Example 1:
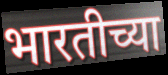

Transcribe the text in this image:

भारतीच्‍या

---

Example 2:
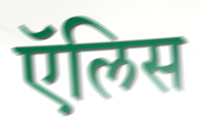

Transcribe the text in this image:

ऍलिस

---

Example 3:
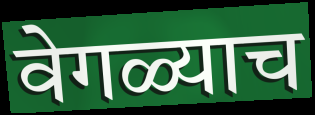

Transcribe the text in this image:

वेगळ्याच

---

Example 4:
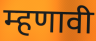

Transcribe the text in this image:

म्हणावी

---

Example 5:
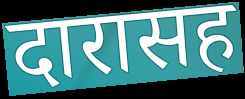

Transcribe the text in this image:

दारासह